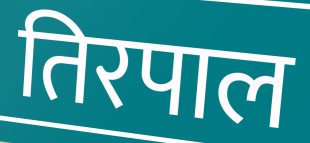
तिरपाल